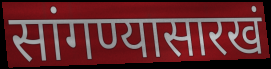
सांगण्यासारखं